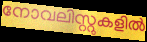
നോവലിസ്റ്റുകളിൽ